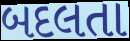
બદલતા